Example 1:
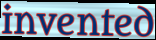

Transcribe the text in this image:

invented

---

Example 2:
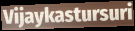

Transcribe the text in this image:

Vijaykastursuri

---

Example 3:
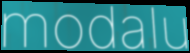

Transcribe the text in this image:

modalu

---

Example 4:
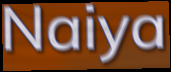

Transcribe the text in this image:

Naiya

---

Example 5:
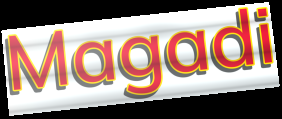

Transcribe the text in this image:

Magadi